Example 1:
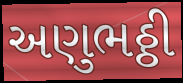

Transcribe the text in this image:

અણુભઠ્ઠી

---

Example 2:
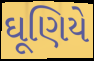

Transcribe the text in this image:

ઘૂણિયે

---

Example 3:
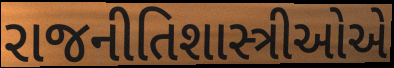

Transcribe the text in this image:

રાજનીતિશાસ્ત્રીઓએ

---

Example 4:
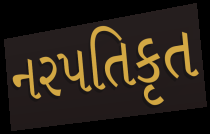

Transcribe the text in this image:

નરપતિકૃત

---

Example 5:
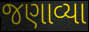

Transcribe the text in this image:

જણાવ્યા